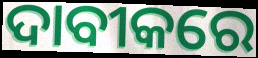
ଦାବୀକରେ